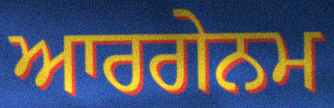
ਆਰਗੇਨਮ